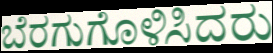
ಬೆರಗುಗೊಳಿಸಿದರು